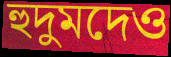
হুদুমদেও